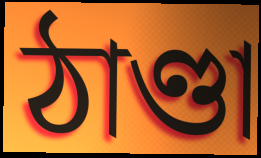
ঠাণ্ডা